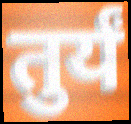
तुर्यं